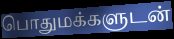
பொதுமக்களுடன்